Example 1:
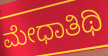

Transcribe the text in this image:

ಮೇಧಾತಿಥಿ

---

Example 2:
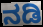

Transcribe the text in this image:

ನಡಿ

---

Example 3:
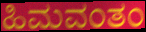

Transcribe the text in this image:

ಹಿಮವಂತಂ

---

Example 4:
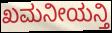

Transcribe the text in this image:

ಖಮನೀಯನ್ತಿ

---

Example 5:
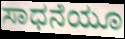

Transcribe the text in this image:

ಸಾಧನೆಯೂ